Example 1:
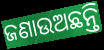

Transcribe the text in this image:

ଜଣାଉଅଛନ୍ତି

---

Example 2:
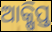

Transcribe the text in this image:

ଆକ୍ଷିପ୍ତ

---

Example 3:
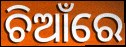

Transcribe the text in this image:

ଚିଆଁରେ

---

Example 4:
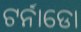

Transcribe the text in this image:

ଟର୍ନାଡୋ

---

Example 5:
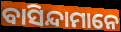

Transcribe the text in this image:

ବାସିନ୍ଦାମାନେ